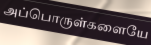
அப்பொருள்களையே